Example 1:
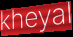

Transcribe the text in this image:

kheyal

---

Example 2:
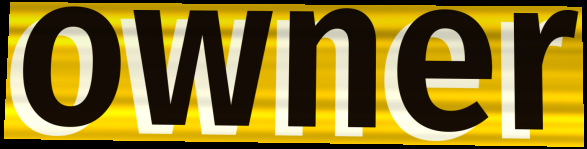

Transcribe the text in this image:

owner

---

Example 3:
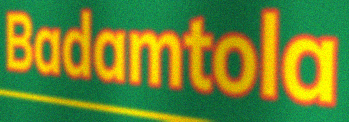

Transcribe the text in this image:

Badamtola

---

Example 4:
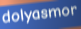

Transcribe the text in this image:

dolyasmor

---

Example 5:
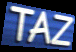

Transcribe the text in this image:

TAZ